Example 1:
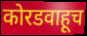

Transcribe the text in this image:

कोरडवाहूच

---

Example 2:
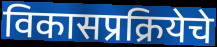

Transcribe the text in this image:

विकासप्रक्रियेचे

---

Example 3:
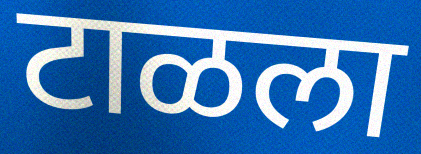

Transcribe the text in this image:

टाळला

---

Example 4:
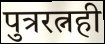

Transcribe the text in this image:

पुत्ररत्नही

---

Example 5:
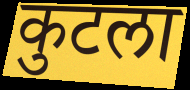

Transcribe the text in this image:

कुटला